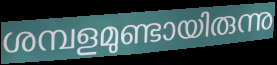
ശമ്പളമുണ്ടായിരുന്നു